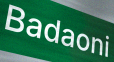
Badaoni